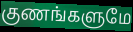
குணங்களுமே